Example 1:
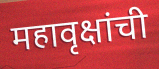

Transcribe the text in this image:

महावृक्षांची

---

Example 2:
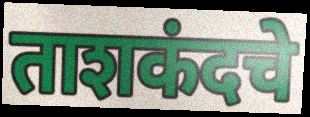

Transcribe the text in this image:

ताशकंदचे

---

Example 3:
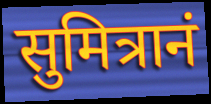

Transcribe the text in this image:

सुमित्रानं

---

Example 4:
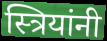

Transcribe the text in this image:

स्त्रियांनी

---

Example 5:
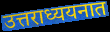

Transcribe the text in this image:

उत्तराध्ययनात